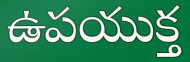
ఉపయుక్త